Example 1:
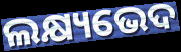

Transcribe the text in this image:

ଲକ୍ଷ୍ୟଭେଦ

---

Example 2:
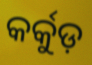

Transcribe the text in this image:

କର୍କୁଡ଼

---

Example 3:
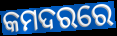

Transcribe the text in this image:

କମଦରରେ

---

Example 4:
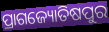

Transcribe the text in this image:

ପ୍ରାଗଜ୍ୟୋତିଷପୁର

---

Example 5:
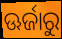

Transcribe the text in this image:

ଊର୍ଜାରୁ